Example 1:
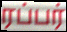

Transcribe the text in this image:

ரப்பர்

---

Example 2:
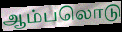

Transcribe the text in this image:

ஆம்பலொடு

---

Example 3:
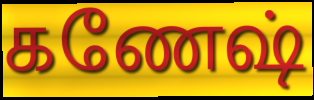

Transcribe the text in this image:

கணேஷ்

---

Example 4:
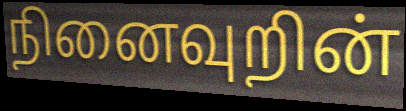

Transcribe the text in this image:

நினைவுறின்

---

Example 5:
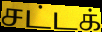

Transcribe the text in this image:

சட்டக்